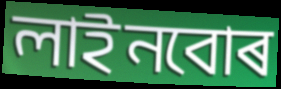
লাইনবোৰ